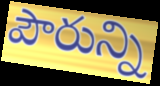
పౌరున్ని